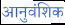
आनुवंशिक